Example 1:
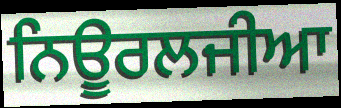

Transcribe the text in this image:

ਨਿਊਰਲਜੀਆ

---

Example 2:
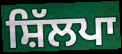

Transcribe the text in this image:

ਸ਼ਿੱਲਪਾ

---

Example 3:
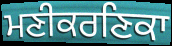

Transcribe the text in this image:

ਮਣੀਕਰਣਿਕਾ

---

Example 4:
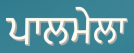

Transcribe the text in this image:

ਪਾਲਮੇਲਾ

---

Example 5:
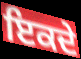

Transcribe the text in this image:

ਇਕਦੇ